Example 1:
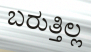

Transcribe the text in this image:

ಬರುತ್ತಿಲ್ಲ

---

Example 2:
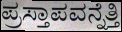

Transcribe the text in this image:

ಪ್ರಸ್ತಾಪವನ್ನೆತ್ತಿ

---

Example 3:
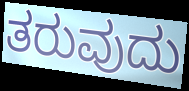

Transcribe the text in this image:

ತರುವುದು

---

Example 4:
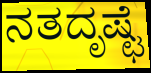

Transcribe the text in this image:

ನತದೃಷ್ಟೆ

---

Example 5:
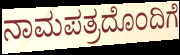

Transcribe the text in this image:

ನಾಮಪತ್ರದೊಂದಿಗೆ